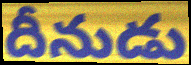
దీనుడు